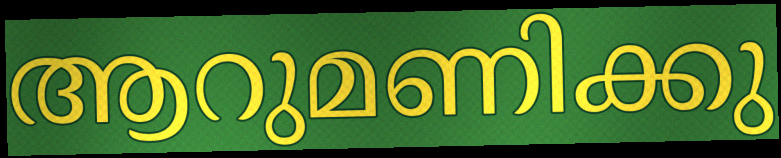
ആറുമണിക്കു